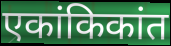
एकांकिकांत